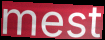
mest